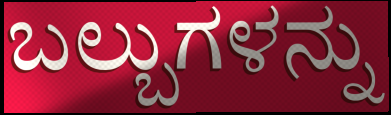
ಬಲ್ಬುಗಳನ್ನು